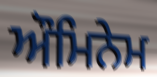
ਔਮਿਨੇਮ